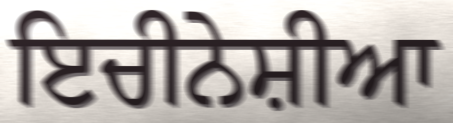
ਇਚੀਨੇਸ਼ੀਆ